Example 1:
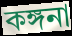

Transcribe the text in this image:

কঙ্গনা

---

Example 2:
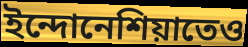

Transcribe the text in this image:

ইন্দোনেশিয়াতেও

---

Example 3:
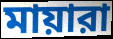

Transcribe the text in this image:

মায়ারা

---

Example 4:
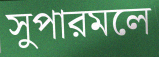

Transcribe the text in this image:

সুপারমলে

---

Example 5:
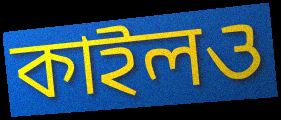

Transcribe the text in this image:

কাইলও